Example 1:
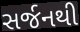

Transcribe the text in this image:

સર્જનથી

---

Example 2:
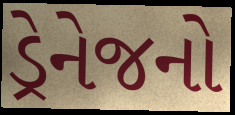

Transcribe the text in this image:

ડ્રેનેજનો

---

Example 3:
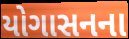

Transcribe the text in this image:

યોગાસનના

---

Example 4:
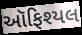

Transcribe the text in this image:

ઑફિશ્યલ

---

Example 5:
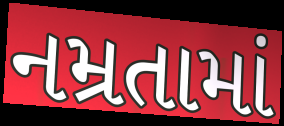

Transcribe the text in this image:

નમ્રતામાં